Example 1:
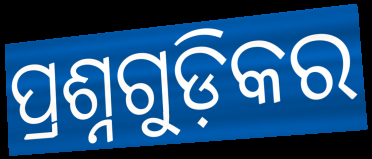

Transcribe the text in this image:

ପ୍ରଶ୍ନଗୁଡ଼ିକର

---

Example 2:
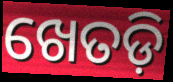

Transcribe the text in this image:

ଖେତଡ଼ି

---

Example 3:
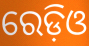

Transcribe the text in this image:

ରେଡ଼ିଓ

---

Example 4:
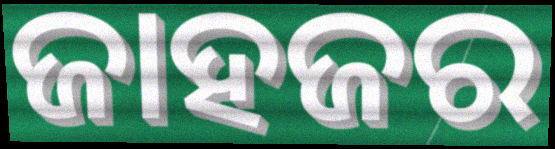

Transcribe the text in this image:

ଜାହଜର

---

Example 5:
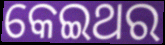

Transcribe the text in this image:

କେଇଥର